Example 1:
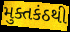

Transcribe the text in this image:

મુક્તકંઠથી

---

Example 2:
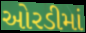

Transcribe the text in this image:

ઓરડીમાં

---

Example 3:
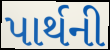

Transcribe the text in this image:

પાર્થની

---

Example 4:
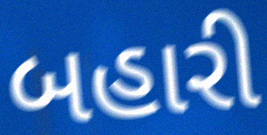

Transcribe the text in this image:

બહારી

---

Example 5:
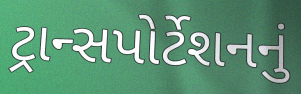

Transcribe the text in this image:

ટ્રાન્સપોર્ટેશનનું